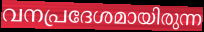
വനപ്രദേശമായിരുന്ന